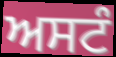
ਅਸਟੰ